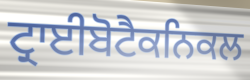
ਟ੍ਰਾਈਬੋਟੈਕਨਿਕਲ